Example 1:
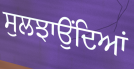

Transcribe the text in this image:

ਸੁਲਝਾਉਂਦਿਆਂ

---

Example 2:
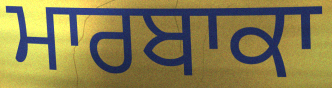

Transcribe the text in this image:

ਮਾਰਬਾਕਾ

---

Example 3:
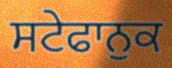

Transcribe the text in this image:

ਸਟੇਫਾਨੁਕ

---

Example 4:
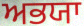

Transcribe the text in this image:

ਅਭਯਾ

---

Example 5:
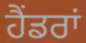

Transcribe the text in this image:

ਹੈਂਡਰਾਂ